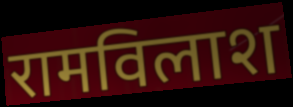
रामविलाश